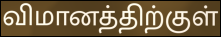
விமானத்திற்குள்